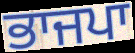
ਭਾਜਪਾ